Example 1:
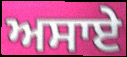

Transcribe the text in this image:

ਅਸਾਏ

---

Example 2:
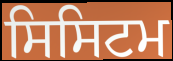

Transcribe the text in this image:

ਸਿਸਿਟਮ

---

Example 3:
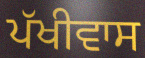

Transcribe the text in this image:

ਪੱਖੀਵਾਸ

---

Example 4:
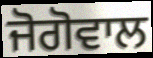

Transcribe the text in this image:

ਜੋਗੋਵਾਲ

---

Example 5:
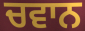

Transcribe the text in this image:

ਚਵਾਨ